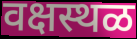
वक्षस्थळ